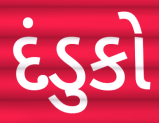
દંડુકો